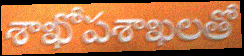
శాఖోపశాఖలతో